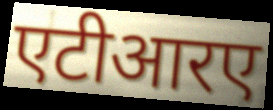
एटीआरए